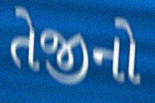
તેજીનો